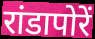
रांडापोरें